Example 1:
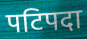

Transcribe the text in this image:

पटिपदा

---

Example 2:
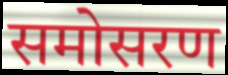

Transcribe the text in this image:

समोसरण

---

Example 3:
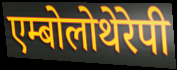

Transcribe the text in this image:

एम्बोलोथेरेपी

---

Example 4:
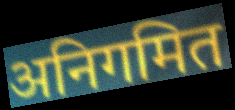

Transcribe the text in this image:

अनिगमित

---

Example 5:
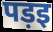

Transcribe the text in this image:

पड़इ